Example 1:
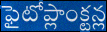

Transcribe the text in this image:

ఫైటోప్లాంక్టన్ల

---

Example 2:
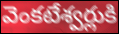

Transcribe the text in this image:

వెంకటేశ్వర్లుకి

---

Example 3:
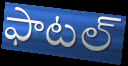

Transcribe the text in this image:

ఫాటల్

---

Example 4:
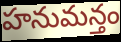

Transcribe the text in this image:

హనుమన్తం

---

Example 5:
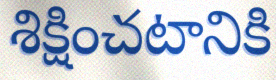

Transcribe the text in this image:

శిక్షించటానికి